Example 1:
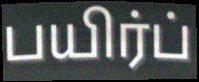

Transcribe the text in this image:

பயிர்ப்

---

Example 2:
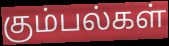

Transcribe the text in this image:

கும்பல்கள்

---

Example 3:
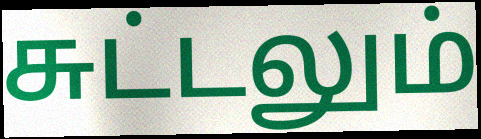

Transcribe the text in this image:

சுட்டலும்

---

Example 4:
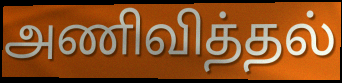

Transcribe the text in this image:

அணிவித்தல்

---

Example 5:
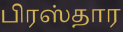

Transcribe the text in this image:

பிரஸ்தார